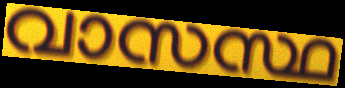
വാസസ്ഥ